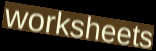
worksheets